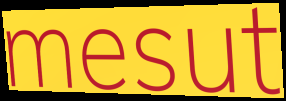
mesut